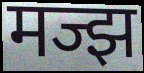
मज्झ